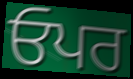
ਓਪਰ